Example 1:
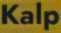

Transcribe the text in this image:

Kalp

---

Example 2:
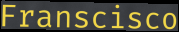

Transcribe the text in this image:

Franscisco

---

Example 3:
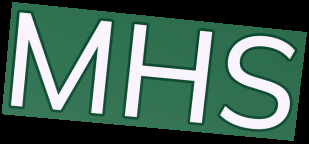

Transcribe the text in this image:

MHS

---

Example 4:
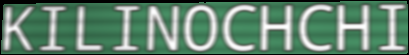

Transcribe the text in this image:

KILINOCHCHI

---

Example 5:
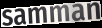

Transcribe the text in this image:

samman